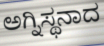
ಅಗ್ನಿಸ್ಥನಾದ